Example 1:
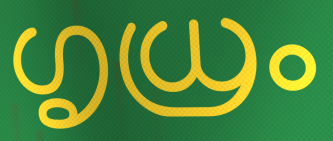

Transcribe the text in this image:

ഗൃധ്രം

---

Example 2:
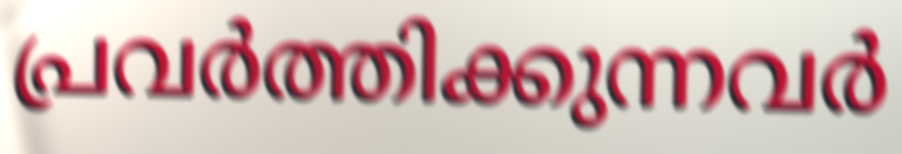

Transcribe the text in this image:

പ്രവർത്തിക്കുന്നവർ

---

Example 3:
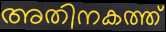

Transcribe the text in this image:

അതിനകത്ത്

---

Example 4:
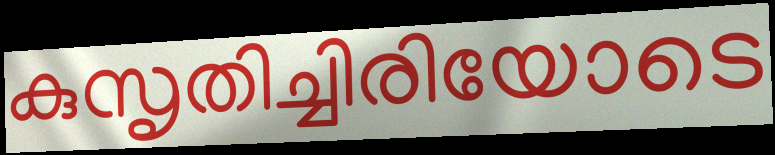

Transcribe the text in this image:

കുസൃതിച്ചിരിയോടെ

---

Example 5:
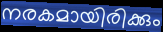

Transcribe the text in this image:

നരകമായിരിക്കും